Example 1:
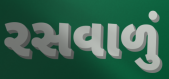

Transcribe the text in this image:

રસવાળું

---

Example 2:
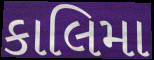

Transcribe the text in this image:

કાલિમા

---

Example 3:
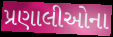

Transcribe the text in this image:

પ્રણાલીઓના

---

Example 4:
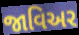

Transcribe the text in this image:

જાવિઅર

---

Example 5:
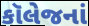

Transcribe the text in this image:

કૉલેજનાં